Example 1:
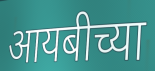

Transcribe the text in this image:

आयबीच्या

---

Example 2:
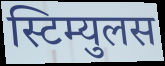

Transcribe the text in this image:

स्टिम्युलस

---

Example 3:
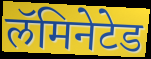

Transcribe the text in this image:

लॅमिनेटेड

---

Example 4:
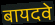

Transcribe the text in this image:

बायदवे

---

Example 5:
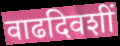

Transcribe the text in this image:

वाढदिवशीं